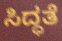
ಸಿದ್ಧತೆ